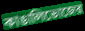
কাঙালিভোজের